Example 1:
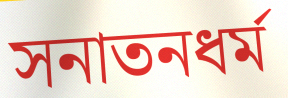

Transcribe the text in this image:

সনাতনধর্ম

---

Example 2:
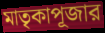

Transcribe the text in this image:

মাতৃকাপূজার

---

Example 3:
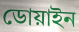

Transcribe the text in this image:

ডোয়াইন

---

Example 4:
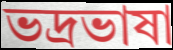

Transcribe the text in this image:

ভদ্রভাষা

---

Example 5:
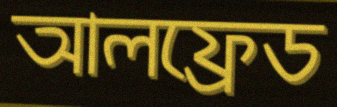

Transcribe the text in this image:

আলফ্রেড